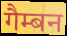
गैम्बन